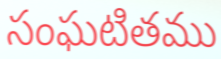
సంఘటితము